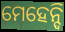
ମେହେନ୍ଦି